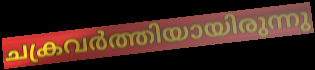
ചക്രവർത്തിയായിരുന്നു